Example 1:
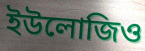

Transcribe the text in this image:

ইউলোজিও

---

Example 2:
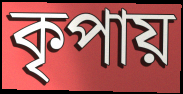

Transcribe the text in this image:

কৃপায়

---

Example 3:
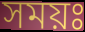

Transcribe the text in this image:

সময়ঃ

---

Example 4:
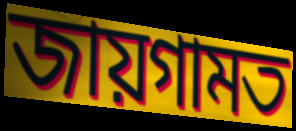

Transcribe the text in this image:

জায়গামত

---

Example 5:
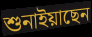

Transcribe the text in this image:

শুনাইয়াছেন